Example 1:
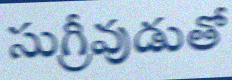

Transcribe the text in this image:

సుగ్రీవుడుతో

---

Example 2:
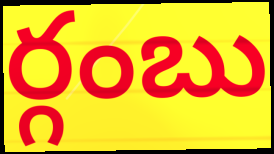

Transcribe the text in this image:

ర్గంబు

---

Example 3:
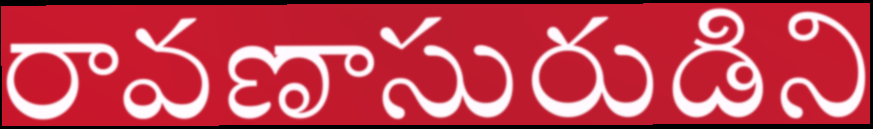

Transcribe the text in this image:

రావణాసురుడిని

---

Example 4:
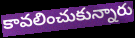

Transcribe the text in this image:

కావలించుకున్నారు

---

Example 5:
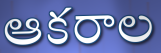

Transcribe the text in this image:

ఆకరాల